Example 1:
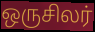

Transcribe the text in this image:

ஒருசிலர்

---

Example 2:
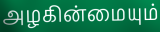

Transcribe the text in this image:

அழகின்மையும்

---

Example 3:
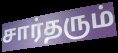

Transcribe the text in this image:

சார்தரும்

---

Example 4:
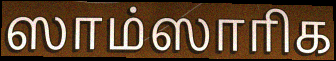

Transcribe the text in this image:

ஸாம்ஸாரிக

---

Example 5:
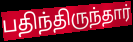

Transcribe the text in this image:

பதிந்திருந்தார்